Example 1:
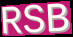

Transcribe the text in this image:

RSB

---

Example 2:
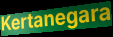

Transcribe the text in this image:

Kertanegara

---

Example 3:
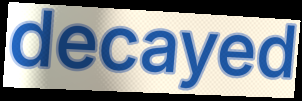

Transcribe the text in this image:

decayed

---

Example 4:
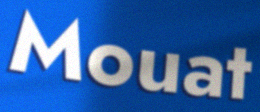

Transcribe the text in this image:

Mouat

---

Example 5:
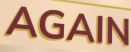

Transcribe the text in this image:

AGAIN